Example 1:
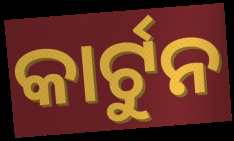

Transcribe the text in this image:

କାର୍ଟୁନ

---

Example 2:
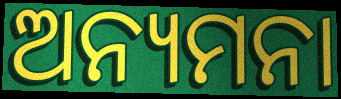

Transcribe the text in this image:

ଅନ୍ୟମନା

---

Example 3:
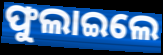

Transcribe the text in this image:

ଫୁଲାଇଲେ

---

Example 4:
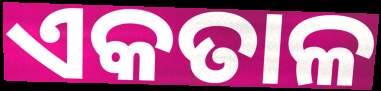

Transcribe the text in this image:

ଏକତାଳ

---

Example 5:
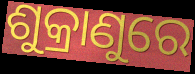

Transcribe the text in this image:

ଶୁକ୍ରାଣୁରେ